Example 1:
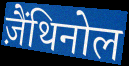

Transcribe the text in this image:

ज़ैंथिनोल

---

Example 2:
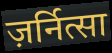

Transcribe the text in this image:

ज़र्नित्सा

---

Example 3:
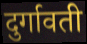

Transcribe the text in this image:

दुर्गावती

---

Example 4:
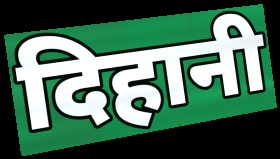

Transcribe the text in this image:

दिहानी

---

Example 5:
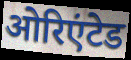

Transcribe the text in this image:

ओरिएंटेड